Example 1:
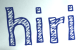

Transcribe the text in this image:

hiri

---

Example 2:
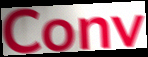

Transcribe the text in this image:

Conv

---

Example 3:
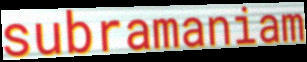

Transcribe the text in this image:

subramaniam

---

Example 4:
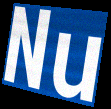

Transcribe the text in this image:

Nu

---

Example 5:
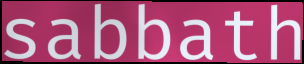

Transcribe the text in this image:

sabbath